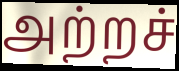
அற்றச்